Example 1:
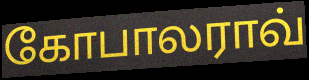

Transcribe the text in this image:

கோபாலராவ்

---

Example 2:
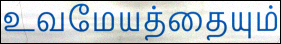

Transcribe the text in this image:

உவமேயத்தையும்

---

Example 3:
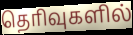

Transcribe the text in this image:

தெரிவுகளில்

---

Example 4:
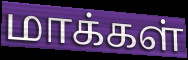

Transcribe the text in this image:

மாக்கள்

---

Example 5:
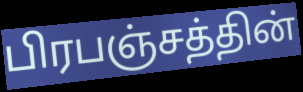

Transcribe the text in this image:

பிரபஞ்சத்தின்